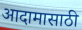
आदामासाठी